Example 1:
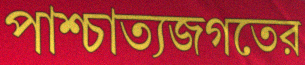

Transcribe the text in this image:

পাশ্চাত্যজগতের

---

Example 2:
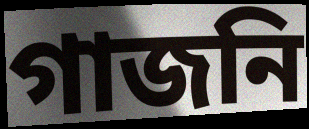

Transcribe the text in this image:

গাজনি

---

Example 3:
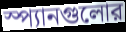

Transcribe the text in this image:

স্প্যানগুলোর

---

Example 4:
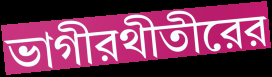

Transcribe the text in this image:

ভাগীরথীতীরের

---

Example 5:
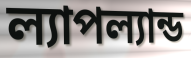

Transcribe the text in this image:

ল্যাপল্যান্ড